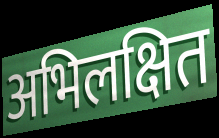
अभिलक्षित